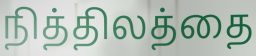
நித்திலத்தை